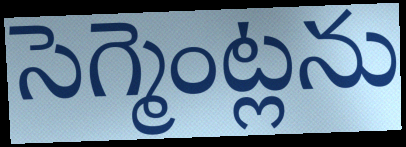
సెగ్మెంట్లను